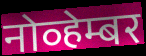
नोव्हेम्बर